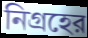
নিগ্রহের